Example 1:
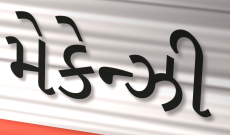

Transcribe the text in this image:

મેકેન્ઝી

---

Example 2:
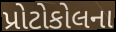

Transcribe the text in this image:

પ્રોટોકોલના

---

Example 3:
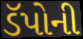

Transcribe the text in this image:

ડૅપોની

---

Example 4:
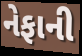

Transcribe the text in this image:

નેફાની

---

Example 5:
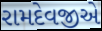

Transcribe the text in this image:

રામદેવજીએ